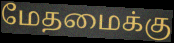
மேதமைக்கு